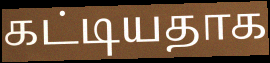
கட்டியதாக